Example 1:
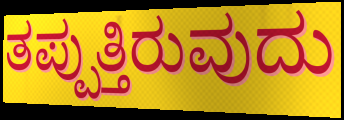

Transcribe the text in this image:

ತಪ್ಪುತ್ತಿರುವುದು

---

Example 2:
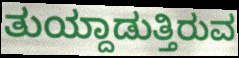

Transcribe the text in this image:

ತುಯ್ದಾಡುತ್ತಿರುವ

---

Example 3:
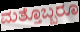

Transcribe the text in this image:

ಮತ್ತೊಬ್ಬರೂ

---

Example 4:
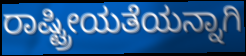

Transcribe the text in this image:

ರಾಷ್ಟ್ರೀಯತೆಯನ್ನಾಗಿ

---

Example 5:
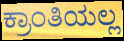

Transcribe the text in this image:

ಕ್ರಾಂತಿಯಲ್ಲ